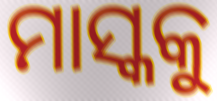
ମାସ୍କକୁ